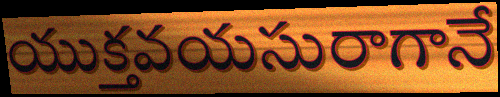
యుక్తవయసురాగానే